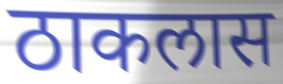
ठाकलास